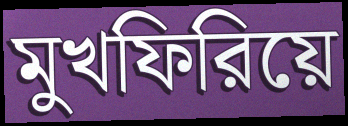
মুখফিরিয়ে